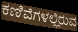
ಕಣಿವೆಗಳಲ್ಲಿರುವ